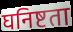
घनिष्टता